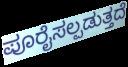
ಪೂರೈಸಲ್ಪಡುತ್ತದೆ